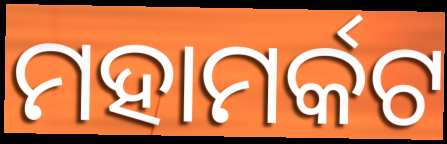
ମହାମର୍କଟ